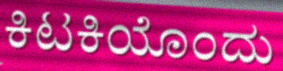
ಕಿಟಕಿಯೊಂದು